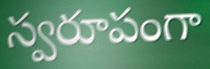
స్వరూపంగా